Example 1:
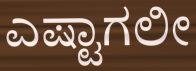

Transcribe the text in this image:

ಎಷ್ಟಾಗಲೀ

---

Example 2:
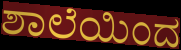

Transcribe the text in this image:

ಶಾಲೆಯಿಂದ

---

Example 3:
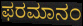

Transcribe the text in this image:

ಫರಮಾನಂ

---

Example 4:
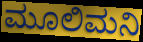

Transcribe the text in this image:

ಮೂಲಿಮನಿ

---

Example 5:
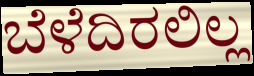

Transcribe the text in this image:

ಬೆಳೆದಿರಲಿಲ್ಲ